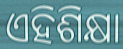
ଏହିଶିକ୍ଷା